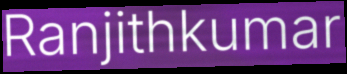
Ranjithkumar